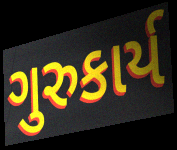
ગુરુકાર્ય